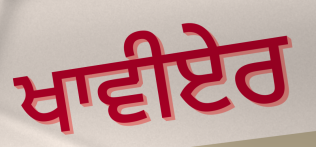
ਖਾਵੀਏਰ